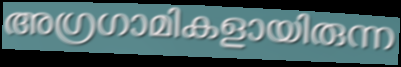
അഗ്രഗാമികളായിരുന്ന